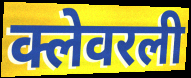
क्लेवरली